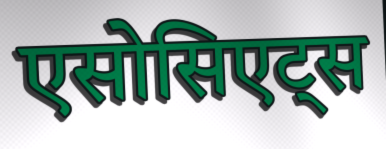
एसोसिएट्स